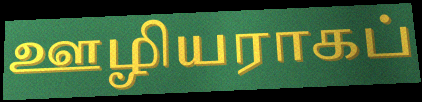
ஊழியராகப்